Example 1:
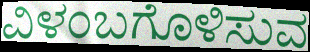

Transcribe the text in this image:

ವಿಳಂಬಗೊಳಿಸುವ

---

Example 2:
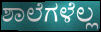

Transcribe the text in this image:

ಶಾಲೆಗಳೆಲ್ಲ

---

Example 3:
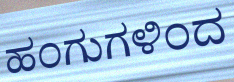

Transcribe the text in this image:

ಹಂಗುಗಳಿಂದ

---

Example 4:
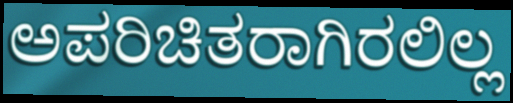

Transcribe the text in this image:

ಅಪರಿಚಿತರಾಗಿರಲಿಲ್ಲ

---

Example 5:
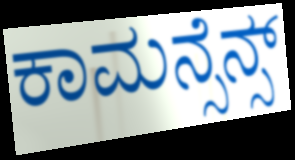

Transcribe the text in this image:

ಕಾಮನ್ಸೆನ್ಸ್